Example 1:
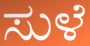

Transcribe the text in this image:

ಸುಳೆ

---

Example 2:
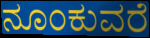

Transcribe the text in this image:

ನೂಂಕುವರೆ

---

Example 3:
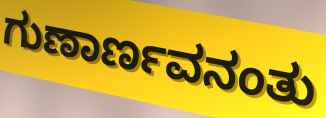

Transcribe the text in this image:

ಗುಣಾರ್ಣವನಂತು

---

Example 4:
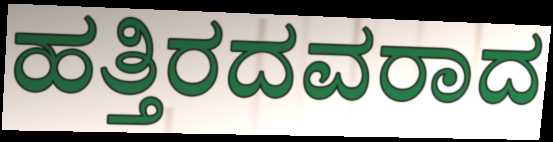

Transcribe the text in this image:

ಹತ್ತಿರದವರಾದ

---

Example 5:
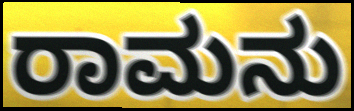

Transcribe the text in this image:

ರಾಮನು